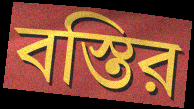
বস্তির